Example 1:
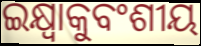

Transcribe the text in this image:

ଇକ୍ଷ୍ୱାକୁବଂଶୀୟ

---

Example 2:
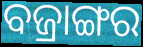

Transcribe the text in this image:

ବଜ୍ରାଙ୍ଗର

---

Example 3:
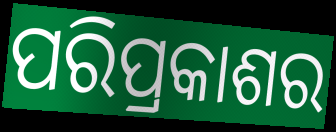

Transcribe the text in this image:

ପରିପ୍ରକାଶର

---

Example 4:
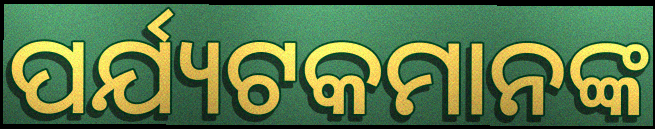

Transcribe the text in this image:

ପର୍ଯ୍ୟଟକମାନଙ୍କ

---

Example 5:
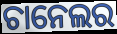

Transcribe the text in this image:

ଚାନେଲର